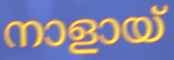
നാളായ്